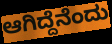
ಆಗಿದ್ದೆನೆಂದು